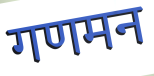
गणमन